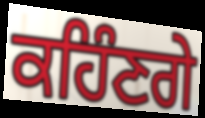
ਕਹਿੰਣਗੇ